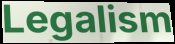
Legalism